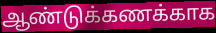
ஆண்டுக்கணக்காக